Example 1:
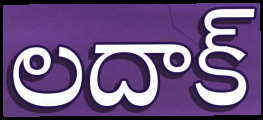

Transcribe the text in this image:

లదాక్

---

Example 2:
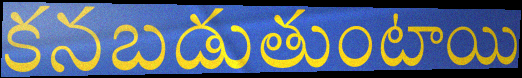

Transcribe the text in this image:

కనబడుతుంటాయి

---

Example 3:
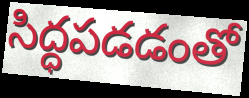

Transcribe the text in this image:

సిద్ధపడడంతో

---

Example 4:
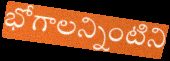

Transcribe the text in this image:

భోగాలన్నింటిని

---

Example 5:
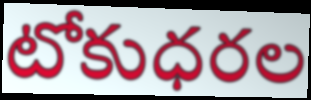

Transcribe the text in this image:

టోకుధరల